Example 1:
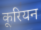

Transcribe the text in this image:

कूरियन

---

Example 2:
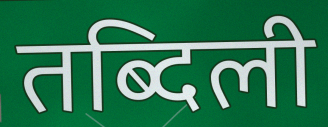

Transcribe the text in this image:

तब्दिली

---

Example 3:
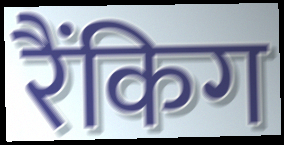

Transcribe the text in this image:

रैंकिग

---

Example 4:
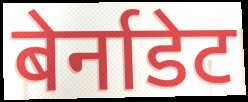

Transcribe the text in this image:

बेर्नाडेट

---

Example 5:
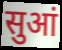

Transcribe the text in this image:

सुआं